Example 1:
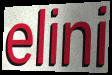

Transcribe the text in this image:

elini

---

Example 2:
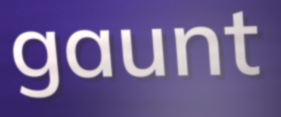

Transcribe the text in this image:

gaunt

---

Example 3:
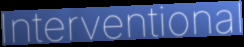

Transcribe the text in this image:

Interventional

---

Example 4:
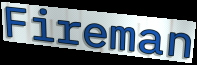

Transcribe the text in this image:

Fireman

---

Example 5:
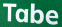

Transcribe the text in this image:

Tabe